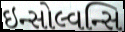
ઇન્સોલ્વન્સિ